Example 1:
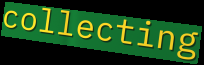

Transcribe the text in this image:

collecting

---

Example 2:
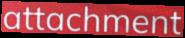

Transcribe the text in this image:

attachment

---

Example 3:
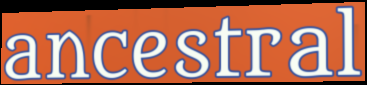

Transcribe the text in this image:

ancestral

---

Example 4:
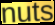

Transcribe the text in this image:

nuts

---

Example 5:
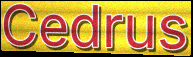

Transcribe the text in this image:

Cedrus